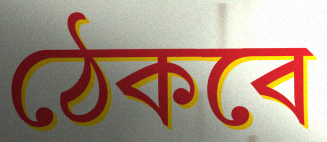
ঠেকবে